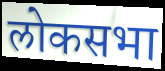
लोकसभा